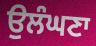
ਉਲੰਘਣਾ